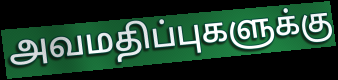
அவமதிப்புகளுக்கு